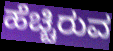
ಹೆಚ್ಚಿರುವ